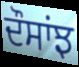
ਦੌਸਾਂਝ